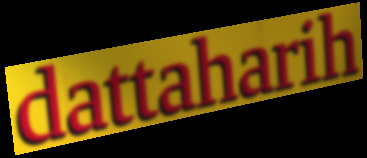
dattaharih